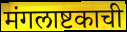
मंगलाष्टकाची